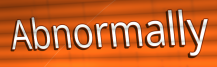
Abnormally